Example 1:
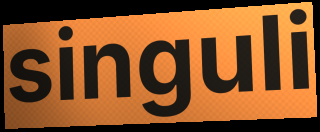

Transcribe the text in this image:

singuli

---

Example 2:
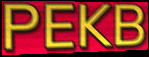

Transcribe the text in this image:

PEKB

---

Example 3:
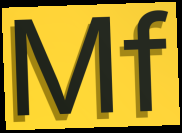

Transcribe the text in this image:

Mf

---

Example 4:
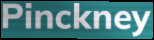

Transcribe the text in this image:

Pinckney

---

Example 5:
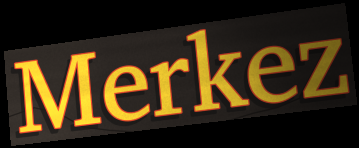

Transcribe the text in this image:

Merkez